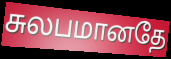
சுலபமானதே